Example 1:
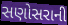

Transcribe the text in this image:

સણોસરાની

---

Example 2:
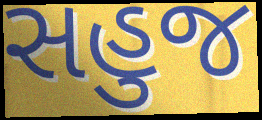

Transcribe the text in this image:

સહુજ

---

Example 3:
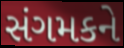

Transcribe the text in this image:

સંગમકને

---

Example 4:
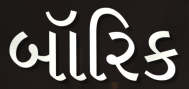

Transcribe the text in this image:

બૉરિક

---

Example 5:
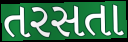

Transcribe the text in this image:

તરસતા